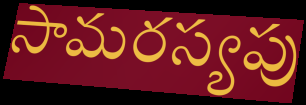
సామరస్యపు